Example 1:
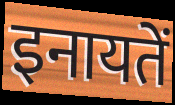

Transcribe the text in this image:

इनायतें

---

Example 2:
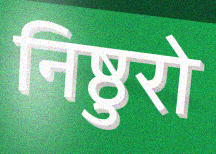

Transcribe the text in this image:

निष्ठुरो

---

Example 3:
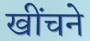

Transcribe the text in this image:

खींचने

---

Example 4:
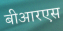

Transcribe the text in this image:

बीआरएस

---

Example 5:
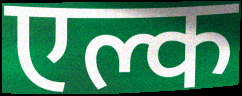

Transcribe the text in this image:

एल्क